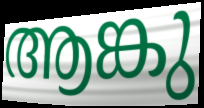
ആങ്കു